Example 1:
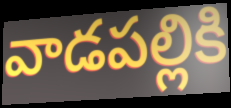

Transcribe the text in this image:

వాడపల్లికి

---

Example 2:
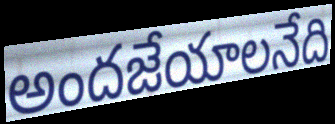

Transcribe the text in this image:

అందజేయాలనేది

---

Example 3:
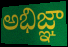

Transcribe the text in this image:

అభిజ్ఞా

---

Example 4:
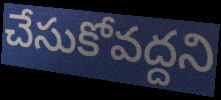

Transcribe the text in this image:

చేసుకోవద్దని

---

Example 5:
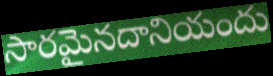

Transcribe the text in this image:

సారమైనదానియందు